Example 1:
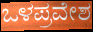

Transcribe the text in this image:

ಒಳಪ್ರವೇಶ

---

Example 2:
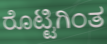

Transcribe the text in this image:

ರೊಟ್ಟಿಗಿಂತ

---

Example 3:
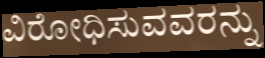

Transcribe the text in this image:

ವಿರೋಧಿಸುವವರನ್ನು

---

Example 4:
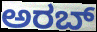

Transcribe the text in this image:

ಅರಬ್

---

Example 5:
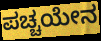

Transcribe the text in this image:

ಪಚ್ಚಯೇನ